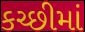
કચ્છીમાં